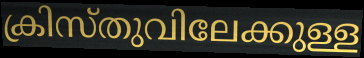
ക്രിസ്തുവിലേക്കുള്ള